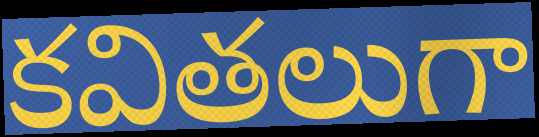
కవితలుగా